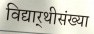
विद्यार्थीसंख्या